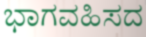
ಭಾಗವಹಿಸದ